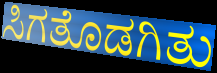
ಸಿಗತೊಡಗಿತು